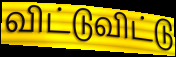
விட்டுவிட்டு